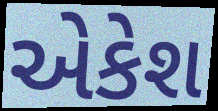
એકેશ